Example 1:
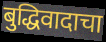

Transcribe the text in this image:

बुद्धिवादाचा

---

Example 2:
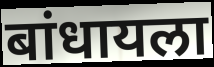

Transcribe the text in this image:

बांधायला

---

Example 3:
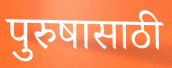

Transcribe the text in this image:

पुरुषासाठी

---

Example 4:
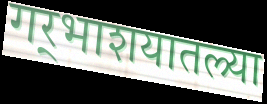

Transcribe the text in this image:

गर्भाशयातल्या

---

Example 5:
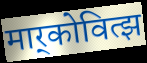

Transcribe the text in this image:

मार्कोवित्झ